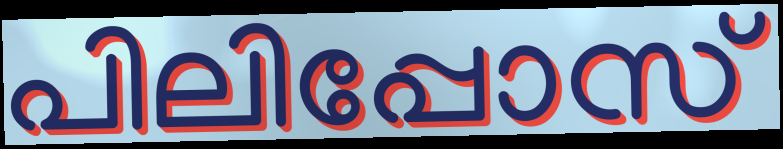
പിലിപ്പോസ്